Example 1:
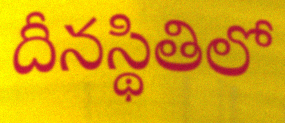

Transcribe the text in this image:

దీనస్థితిలో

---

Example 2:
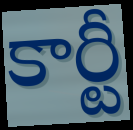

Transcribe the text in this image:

కార్టీ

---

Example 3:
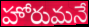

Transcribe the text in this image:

హోరుమనే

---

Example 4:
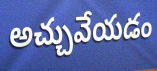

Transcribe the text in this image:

అచ్చువేయడం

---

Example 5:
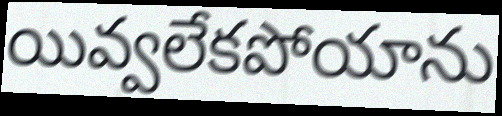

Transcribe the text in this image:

యివ్వలేకపోయాను